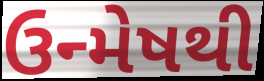
ઉન્મેષથી